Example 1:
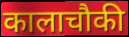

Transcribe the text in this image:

कालाचौकी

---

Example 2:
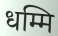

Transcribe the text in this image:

धम्मि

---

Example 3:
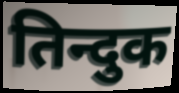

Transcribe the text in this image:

तिन्दुक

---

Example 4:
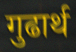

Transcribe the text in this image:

गुढार्थ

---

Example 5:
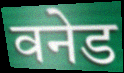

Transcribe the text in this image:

वनेड